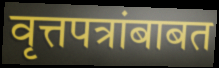
वृत्तपत्रांबाबत